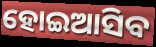
ହୋଇଆସିବ